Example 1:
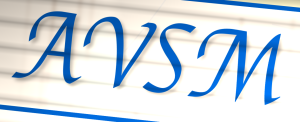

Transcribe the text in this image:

AVSM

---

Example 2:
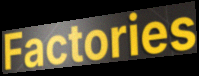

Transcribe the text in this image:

Factories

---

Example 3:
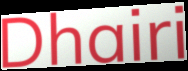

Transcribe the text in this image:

Dhairi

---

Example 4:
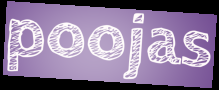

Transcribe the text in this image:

poojas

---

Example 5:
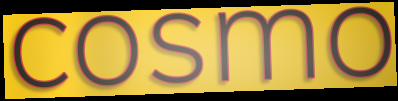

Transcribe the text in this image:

cosmo